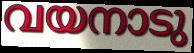
വയനാടു